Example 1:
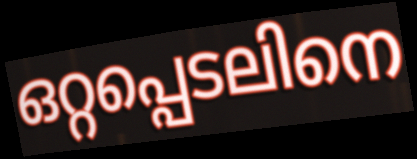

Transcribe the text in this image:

ഒറ്റപ്പെടലിനെ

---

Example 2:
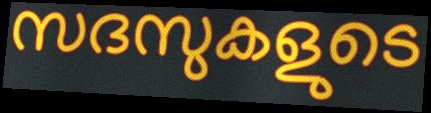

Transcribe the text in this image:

സദസുകളുടെ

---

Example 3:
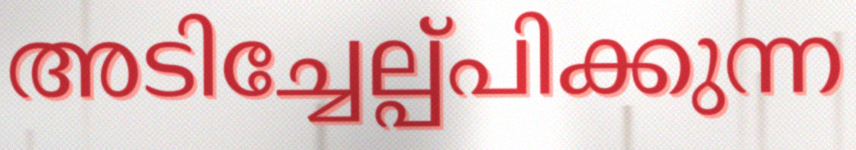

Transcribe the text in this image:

അടിച്ചേല്പ്പിക്കുന്ന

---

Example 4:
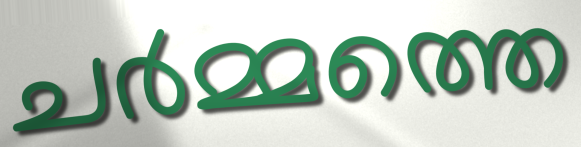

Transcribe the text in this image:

ചർമ്മത്തെ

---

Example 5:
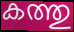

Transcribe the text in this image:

കത്തു